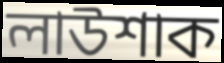
লাউশাক